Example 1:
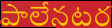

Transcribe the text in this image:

పాలేనటర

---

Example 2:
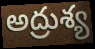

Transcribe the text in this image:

అద్రుశ్య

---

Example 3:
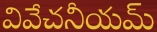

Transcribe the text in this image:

వివేచనీయమ్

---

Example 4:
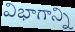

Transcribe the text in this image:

విభాగాన్ని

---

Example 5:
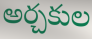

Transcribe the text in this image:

అర్చకుల